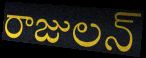
రాజులన్